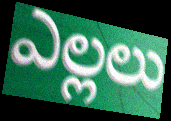
ఎల్లలు